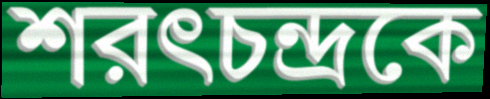
শরৎচন্দ্রকে